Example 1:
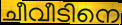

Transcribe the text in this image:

ചീവീടിനെ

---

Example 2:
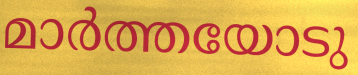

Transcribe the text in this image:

മാർത്തയോടു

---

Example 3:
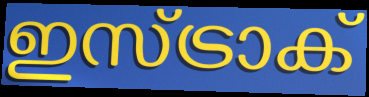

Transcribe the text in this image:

ഇസ്ട്രാക്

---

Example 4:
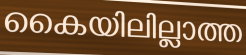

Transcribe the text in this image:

കൈയിലില്ലാത്ത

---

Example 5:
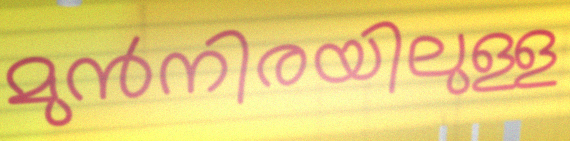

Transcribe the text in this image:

മുൻനിരയിലുള്ള